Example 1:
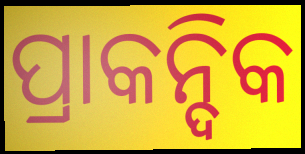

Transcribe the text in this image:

ପ୍ରାକନ୍ଦିକ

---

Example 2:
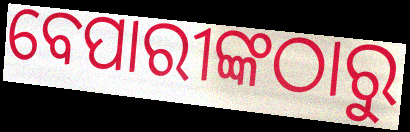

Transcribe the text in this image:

ବେପାରୀଙ୍କଠାରୁ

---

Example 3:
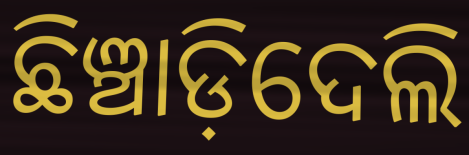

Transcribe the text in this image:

ଛିଞ୍ଚାଡ଼ିଦେଲି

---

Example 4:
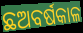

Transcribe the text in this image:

ଛଅବର୍ଷକାଳ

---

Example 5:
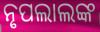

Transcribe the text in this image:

ନୃପଲାଲଙ୍କ